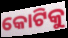
କୋଟିକୁ